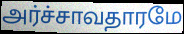
அர்ச்சாவதாரமே